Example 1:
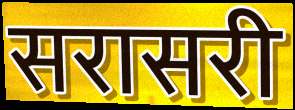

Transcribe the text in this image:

सरासरी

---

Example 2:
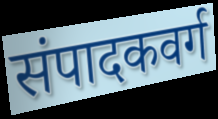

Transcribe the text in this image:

संपादकवर्ग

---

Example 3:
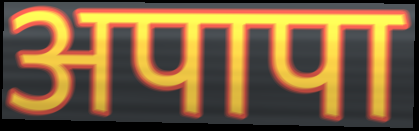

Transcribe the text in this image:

अपापा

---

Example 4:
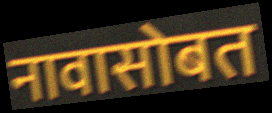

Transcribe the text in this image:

नावासोबत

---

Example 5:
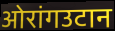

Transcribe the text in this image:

ओरांगउटान